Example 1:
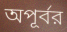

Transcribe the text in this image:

অপূর্বর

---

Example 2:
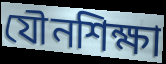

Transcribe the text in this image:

যৌনশিক্ষা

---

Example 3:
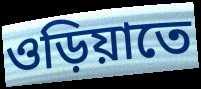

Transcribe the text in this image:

ওড়িয়াতে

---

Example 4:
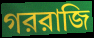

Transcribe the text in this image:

গররাজি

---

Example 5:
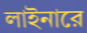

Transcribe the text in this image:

লাইনারে